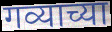
गव्याच्या